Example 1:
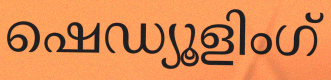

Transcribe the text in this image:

ഷെഡ്യൂളിംഗ്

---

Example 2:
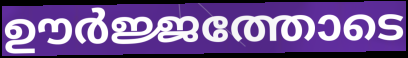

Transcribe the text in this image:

ഊർജ്ജത്തോടെ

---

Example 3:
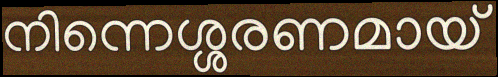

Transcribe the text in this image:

നിന്നെശ്ശരണമായ്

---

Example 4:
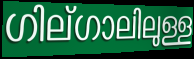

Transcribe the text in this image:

ഗില്ഗാലിലുള്ള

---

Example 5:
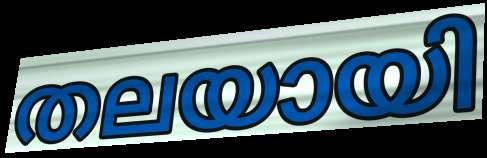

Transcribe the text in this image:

തലയായി